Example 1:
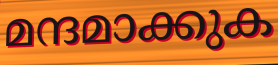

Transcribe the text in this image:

മന്ദമാക്കുക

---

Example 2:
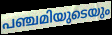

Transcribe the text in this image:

പഞ്ചമിയുടെയും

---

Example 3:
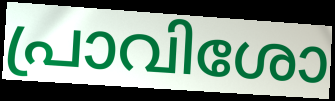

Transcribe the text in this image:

പ്രാവിശോ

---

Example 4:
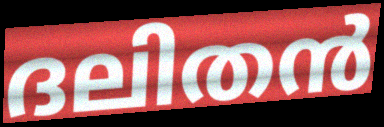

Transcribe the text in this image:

ദലിതൻ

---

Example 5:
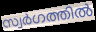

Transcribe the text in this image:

സ്വർഗത്തിൽ